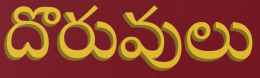
దొరువులు